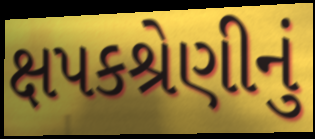
ક્ષપકશ્રેણીનું